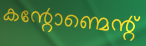
കന്റോണ്മെന്റ്